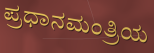
ಪ್ರಧಾನಮಂತ್ರಿಯ